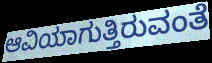
ಆವಿಯಾಗುತ್ತಿರುವಂತೆ